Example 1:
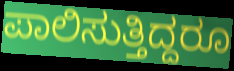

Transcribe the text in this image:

ಪಾಲಿಸುತ್ತಿದ್ದರೂ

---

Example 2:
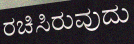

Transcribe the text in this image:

ರಚಿಸಿರುವುದು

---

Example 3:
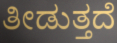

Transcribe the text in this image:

ತೀಡುತ್ತದೆ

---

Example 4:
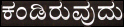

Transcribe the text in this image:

ಕಂಡಿರುವುದು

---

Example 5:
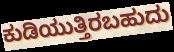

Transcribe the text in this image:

ಕುಡಿಯುತ್ತಿರಬಹುದು